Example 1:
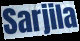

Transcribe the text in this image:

Sarjila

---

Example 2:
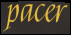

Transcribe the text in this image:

pacer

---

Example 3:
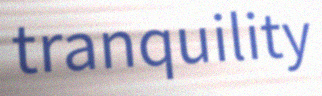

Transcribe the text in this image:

tranquility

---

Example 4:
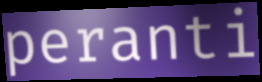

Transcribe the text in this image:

peranti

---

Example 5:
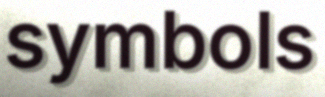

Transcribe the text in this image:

symbols